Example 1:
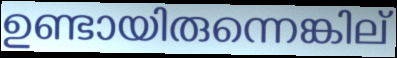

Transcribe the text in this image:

ഉണ്ടായിരുന്നെങ്കില്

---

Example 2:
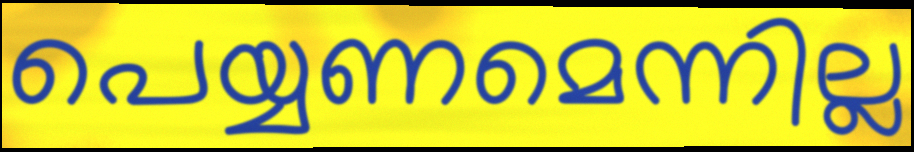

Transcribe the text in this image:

പെയ്യണമെന്നില്ല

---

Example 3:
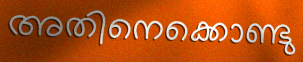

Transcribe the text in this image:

അതിനെക്കൊണ്ടു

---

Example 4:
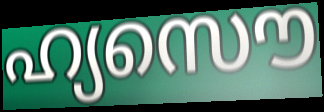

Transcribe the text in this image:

ഹ്യസൌ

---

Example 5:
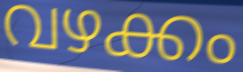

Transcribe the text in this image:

വഴക്കം